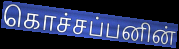
கொச்சப்பனின்